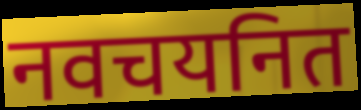
नवचयनित